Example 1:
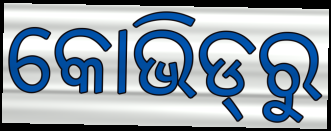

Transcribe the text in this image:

କୋଭିଡ୍‌ରୁ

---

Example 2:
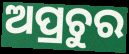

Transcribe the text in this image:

ଅପ୍ରଚୁର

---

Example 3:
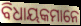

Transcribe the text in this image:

ବିଧାୟକମାନେ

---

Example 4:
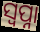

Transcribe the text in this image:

ସ୍ଵପ୍ନା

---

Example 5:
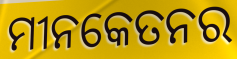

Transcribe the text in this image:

ମୀନକେତନର